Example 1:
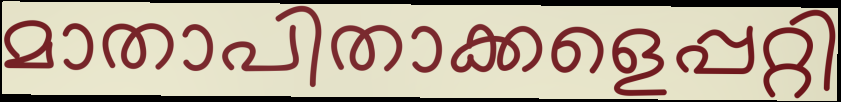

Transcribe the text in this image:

മാതാപിതാക്കളെപ്പറ്റി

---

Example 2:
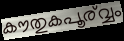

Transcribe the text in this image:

കൗതുകപൂര്വ്വം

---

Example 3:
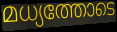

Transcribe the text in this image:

മധ്യത്തോടെ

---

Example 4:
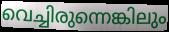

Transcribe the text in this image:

വെച്ചിരുന്നെങ്കിലും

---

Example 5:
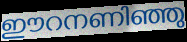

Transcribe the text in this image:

ഈറനണിഞ്ഞു